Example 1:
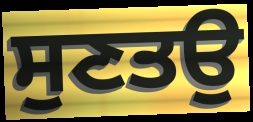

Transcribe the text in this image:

ਸੁਣਤਉ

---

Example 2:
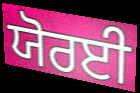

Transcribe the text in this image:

ਯੋਰਈ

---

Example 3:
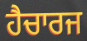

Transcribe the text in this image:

ਹੈਚਾਰਜ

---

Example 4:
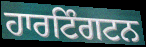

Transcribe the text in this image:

ਹਾਰਟਿੰਗਟਨ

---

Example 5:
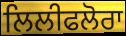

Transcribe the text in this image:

ਲਿਲੀਫਲੋਰਾ